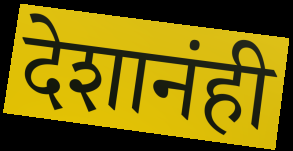
देशानंही